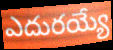
ఎదురయ్యే